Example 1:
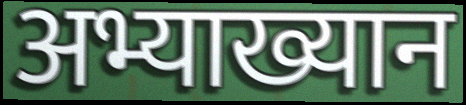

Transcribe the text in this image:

अभ्याख्यान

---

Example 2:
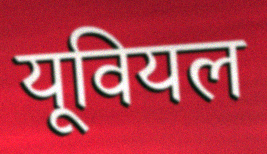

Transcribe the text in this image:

यूवियल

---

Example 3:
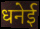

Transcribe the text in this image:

धनेई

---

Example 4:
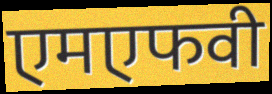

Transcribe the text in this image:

एमएफवी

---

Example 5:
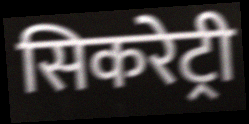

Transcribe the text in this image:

सिकरेट्री